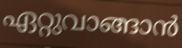
ഏറ്റുവാങ്ങാൻ